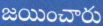
జయించారు